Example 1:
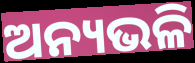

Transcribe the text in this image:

ଅନ୍ୟଭଳି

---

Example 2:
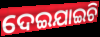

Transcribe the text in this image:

ଦେଇଯାଇଚି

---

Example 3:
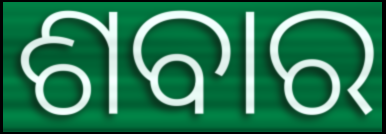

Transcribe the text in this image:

ଶବାର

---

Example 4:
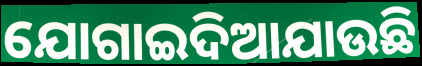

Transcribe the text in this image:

ଯୋଗାଇଦିଆଯାଉଛି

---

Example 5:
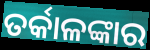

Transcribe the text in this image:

ତର୍କାଳଙ୍କାର